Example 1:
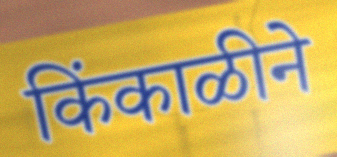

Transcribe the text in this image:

किंकाळीने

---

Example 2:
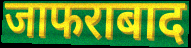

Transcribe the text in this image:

जाफराबाद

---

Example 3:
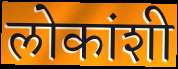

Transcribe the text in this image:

लोकांशी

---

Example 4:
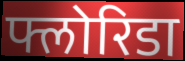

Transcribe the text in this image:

फ्लोरिडा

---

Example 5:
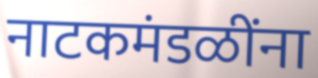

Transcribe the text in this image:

नाटकमंडळींना